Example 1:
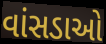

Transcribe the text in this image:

વાંસડાઓ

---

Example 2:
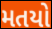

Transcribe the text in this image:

મતયો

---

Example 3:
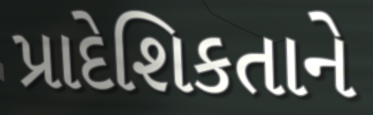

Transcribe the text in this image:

પ્રાદેશિકતાને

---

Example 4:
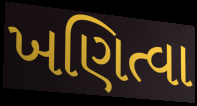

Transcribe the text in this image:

ખણિત્વા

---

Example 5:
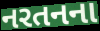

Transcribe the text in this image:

નરતનના